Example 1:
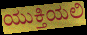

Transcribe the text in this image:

ಯುಕ್ತಿಯಲಿ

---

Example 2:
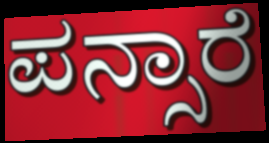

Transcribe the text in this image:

ಪನ್ಸಾರೆ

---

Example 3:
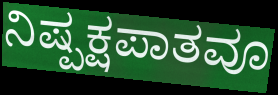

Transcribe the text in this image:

ನಿಷ್ಪಕ್ಷಪಾತವೂ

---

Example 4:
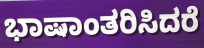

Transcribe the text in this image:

ಭಾಷಾಂತರಿಸಿದರೆ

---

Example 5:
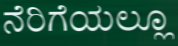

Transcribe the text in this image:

ನೆರಿಗೆಯಲ್ಲೂ